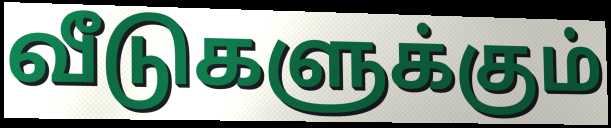
வீடுகளுக்கும்